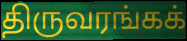
திருவரங்கக்